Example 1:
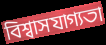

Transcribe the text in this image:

বিশ্বাসযাগ্যতা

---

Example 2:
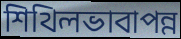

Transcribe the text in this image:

শিথিলভাবাপন্ন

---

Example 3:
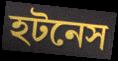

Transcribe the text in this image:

হটনেস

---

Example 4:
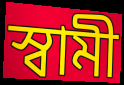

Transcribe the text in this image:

স্বামী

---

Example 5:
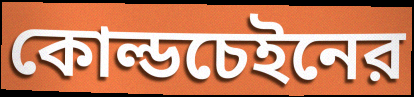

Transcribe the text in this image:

কোল্ডচেইনের